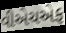
વીએચએફ